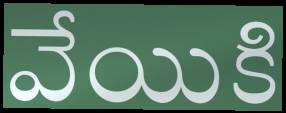
వేయికి